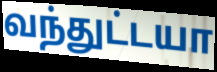
வந்துட்டயா